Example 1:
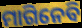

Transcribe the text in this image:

ମାଗିନେବି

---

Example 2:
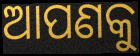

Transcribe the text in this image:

ଆପଣକୁ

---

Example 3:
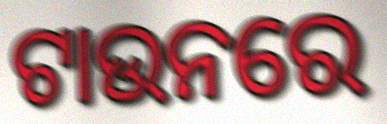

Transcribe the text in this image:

ଟାଉନରେ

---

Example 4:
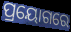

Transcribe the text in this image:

ପ୍ରୟୋଗରେ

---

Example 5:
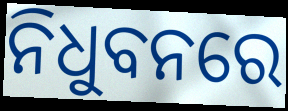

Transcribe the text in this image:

ନିଧୁବନରେ